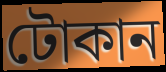
টোকান